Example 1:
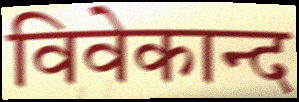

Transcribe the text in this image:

विवेकान्द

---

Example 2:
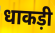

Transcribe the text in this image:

धाकड़ी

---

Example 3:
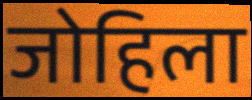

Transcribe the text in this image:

जोहिला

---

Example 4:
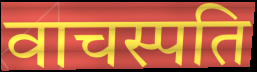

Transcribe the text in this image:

वाचस्पति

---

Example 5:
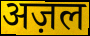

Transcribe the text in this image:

अज़ल